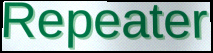
Repeater